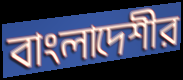
বাংলাদেশীর